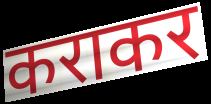
कराकर